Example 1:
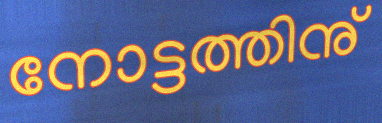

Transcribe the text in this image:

നോട്ടത്തിനു്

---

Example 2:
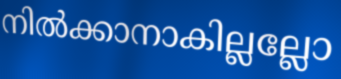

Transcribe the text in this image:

നിൽക്കാനാകില്ലല്ലോ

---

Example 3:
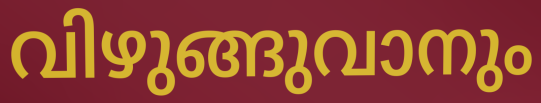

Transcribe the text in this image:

വിഴുങ്ങുവാനും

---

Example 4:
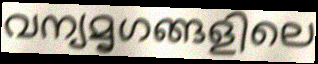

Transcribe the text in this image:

വന്യമൃഗങ്ങളിലെ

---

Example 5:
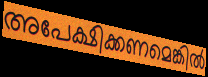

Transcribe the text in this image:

അപേക്ഷിക്കണമെങ്കിൽ